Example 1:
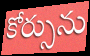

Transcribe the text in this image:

కోర్సును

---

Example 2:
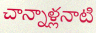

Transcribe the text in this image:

చాన్నాళ్లనాటి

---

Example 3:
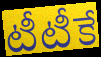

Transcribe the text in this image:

టీటీకే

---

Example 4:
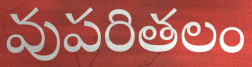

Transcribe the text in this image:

వుపరితలం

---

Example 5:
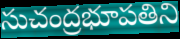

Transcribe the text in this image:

సుచంద్రభూపతిని